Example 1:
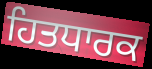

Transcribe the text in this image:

ਹਿਤਧਾਰਕ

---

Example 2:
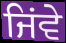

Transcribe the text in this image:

ਜਿਂਵੇ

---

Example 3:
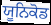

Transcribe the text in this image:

ਯੂਨਿਕੋਡ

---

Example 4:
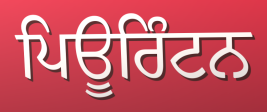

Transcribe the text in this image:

ਪਿਊਰਿੰਟਨ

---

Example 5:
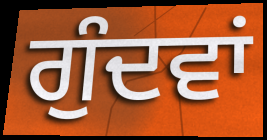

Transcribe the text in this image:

ਗੁੰਦਵਾਂ